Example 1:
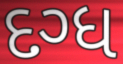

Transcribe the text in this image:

દગ્ધ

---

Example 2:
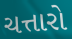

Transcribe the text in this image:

ચત્તારો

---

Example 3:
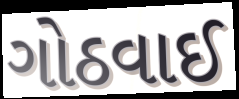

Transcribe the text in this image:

ગોઠવાઈ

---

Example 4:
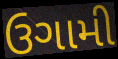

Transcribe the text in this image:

ઉગામી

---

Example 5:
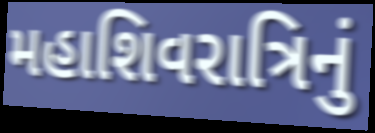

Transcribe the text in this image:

મહાશિવરાત્રિનું